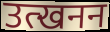
उत्‍खनन